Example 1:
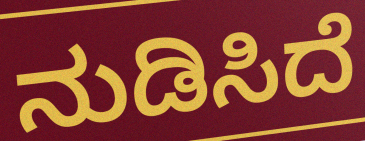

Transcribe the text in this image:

ನುಡಿಸಿದೆ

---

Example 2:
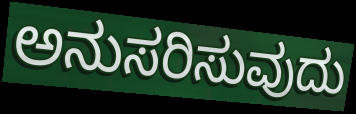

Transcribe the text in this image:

ಅನುಸರಿಸುವುದು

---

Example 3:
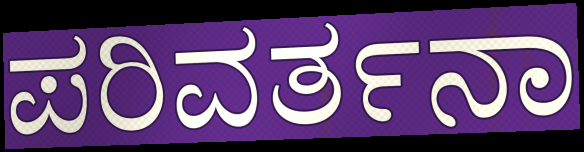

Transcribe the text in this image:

ಪರಿವರ್ತನಾ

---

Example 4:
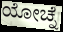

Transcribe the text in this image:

ಯೋಚ್ನೆ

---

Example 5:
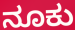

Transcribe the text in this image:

ನೂಕು